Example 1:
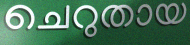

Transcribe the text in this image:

ചെറുതായ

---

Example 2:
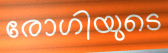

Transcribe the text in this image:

രോഗിയുടെ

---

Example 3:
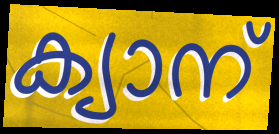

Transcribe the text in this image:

ക്യാന്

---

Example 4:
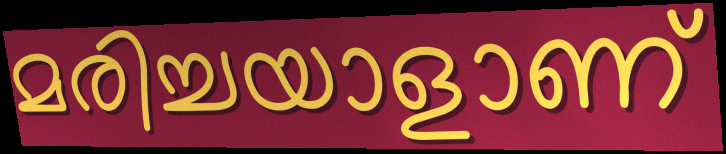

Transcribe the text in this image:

മരിച്ചയാളാണ്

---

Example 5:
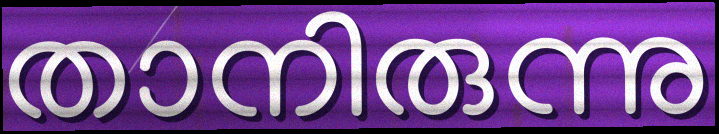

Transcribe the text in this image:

താനിരുന്നു